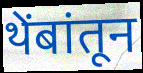
थेंबांतून